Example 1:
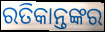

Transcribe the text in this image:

ରତିକାନ୍ତଙ୍କର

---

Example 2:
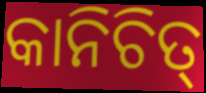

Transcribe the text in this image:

କାନିଚିତ୍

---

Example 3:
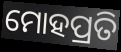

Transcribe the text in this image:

ମୋହପ୍ରତି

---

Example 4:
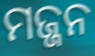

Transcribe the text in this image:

ମଜ୍ଜନ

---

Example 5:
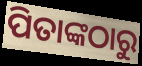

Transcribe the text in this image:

ପିତାଙ୍କଠାରୁ